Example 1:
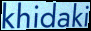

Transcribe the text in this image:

khidaki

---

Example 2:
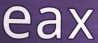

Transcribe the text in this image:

eax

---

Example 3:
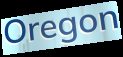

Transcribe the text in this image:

Oregon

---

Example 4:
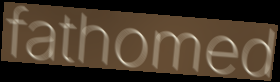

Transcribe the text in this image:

fathomed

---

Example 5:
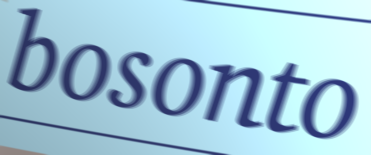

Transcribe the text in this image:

bosonto